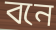
বনে